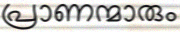
പ്രാണന്മാരും